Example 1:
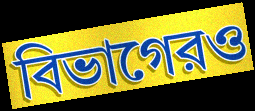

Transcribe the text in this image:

বিভাগেরও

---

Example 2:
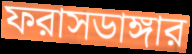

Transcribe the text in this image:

ফরাসডাঙ্গার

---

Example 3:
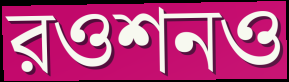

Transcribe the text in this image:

রওশনও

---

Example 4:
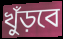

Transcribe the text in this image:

খুঁড়বে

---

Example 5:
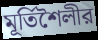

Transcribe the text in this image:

মূর্তিশৈলীর